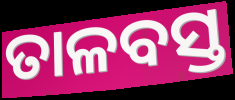
ତାଳବସ୍ତ